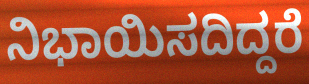
ನಿಭಾಯಿಸದಿದ್ದರೆ